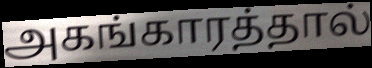
அகங்காரத்தால்